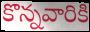
కొన్నవారికి